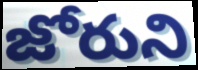
జోరుని